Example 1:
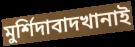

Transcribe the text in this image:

মুর্শিদাবাদখানাই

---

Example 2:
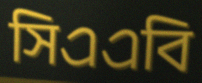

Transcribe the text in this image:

সিএএবি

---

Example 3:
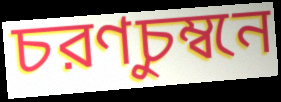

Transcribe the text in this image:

চরণচুম্বনে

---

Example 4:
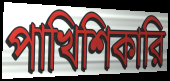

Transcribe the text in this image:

পাখিশিকারি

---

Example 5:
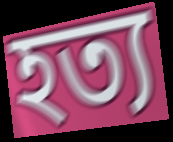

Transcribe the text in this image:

হত্য